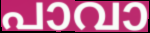
പാവാ